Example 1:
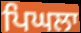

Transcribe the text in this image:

ਪਿਘਲਾ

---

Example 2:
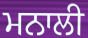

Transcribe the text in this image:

ਮਨਾਲੀ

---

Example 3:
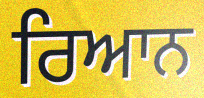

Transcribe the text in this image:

ਰਿਆਨ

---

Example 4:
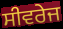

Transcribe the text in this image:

ਸੀਵਰੇਜ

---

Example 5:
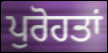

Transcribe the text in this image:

ਪੁਰੋਹਤਾਂ